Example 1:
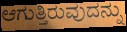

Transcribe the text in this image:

ಆಗುತ್ತಿರುವುದನ್ನು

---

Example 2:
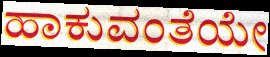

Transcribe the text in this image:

ಹಾಕುವಂತೆಯೇ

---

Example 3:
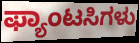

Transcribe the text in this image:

ಫ್ಯಾಂಟಸಿಗಳು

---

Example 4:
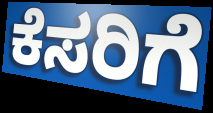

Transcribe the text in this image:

ಕೆಸರಿಗೆ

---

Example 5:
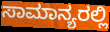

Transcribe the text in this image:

ಸಾಮಾನ್ಯರಲ್ಲಿ